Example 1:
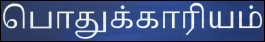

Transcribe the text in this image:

பொதுக்காரியம்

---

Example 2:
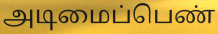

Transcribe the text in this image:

அடிமைப்பெண்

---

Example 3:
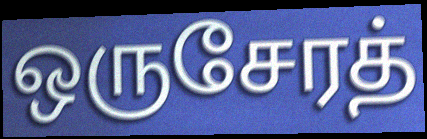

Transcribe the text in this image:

ஒருசேரத்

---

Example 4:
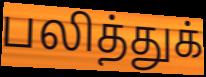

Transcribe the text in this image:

பலித்துக்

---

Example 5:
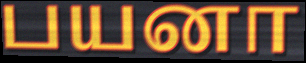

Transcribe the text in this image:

பயனா